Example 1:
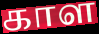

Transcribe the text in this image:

காள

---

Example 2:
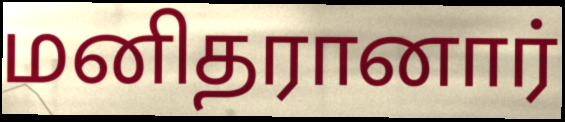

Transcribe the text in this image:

மனிதரானார்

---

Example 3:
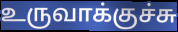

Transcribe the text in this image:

உருவாக்குச்சு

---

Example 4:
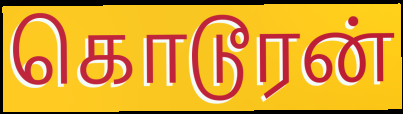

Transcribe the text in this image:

கொடூரன்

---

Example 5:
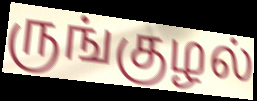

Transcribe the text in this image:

ருங்குழல்